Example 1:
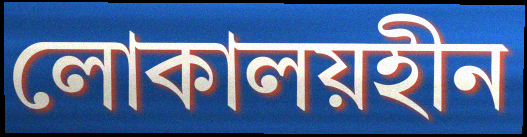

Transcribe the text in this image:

লোকালয়হীন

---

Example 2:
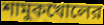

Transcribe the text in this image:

শামুকখোলের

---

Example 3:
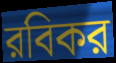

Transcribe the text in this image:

রবিকর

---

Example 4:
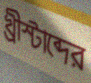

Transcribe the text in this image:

খ্রীস্টাব্দের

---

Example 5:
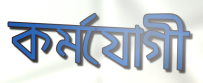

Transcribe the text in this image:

কর্মযোগী